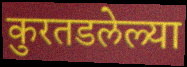
कुरतडलेल्या